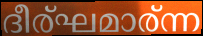
ദീര്ഘമാര്ന്ന